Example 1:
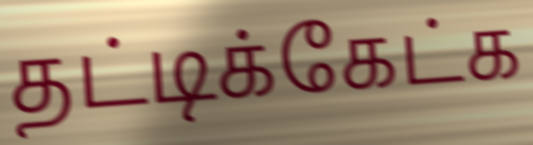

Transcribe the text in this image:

தட்டிக்கேட்க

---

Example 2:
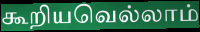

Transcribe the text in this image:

கூறியவெல்லாம்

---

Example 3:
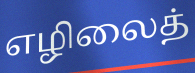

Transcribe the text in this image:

எழிலைத்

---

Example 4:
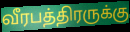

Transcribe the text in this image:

வீரபத்திரருக்கு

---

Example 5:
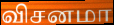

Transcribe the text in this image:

விசனமா